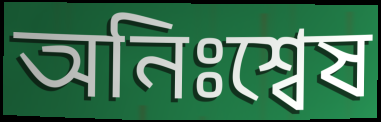
অনিঃশ্বেষ